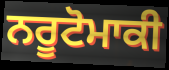
ਨਰੂਟੋਮਾਕੀ